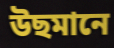
উছমানে